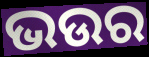
ଭଉର